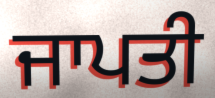
ਜਾਪਤੀ